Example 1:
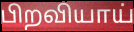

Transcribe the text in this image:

பிறவியாய்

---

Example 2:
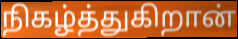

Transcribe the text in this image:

நிகழ்த்துகிறான்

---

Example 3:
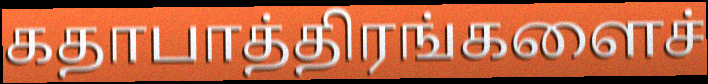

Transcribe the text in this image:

கதாபாத்திரங்களைச்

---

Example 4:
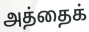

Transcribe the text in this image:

அத்தைக்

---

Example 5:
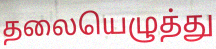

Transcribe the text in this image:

தலையெழுத்து